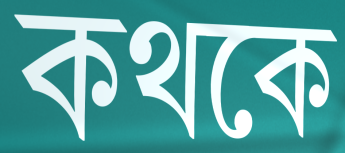
কথকে